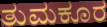
ತುಮಕೂರ